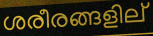
ശരീരങ്ങളില്